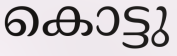
കൊട്ടു